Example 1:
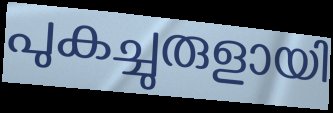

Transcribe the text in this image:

പുകച്ചുരുളായി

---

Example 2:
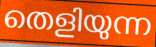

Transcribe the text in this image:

തെളിയുന്ന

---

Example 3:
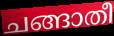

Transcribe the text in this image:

ചങ്ങാതീ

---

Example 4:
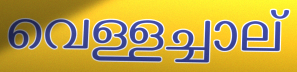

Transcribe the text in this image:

വെള്ളച്ചാല്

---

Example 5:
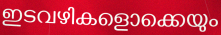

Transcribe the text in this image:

ഇടവഴികളൊക്കെയും